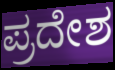
ಪ್ರದೇಶ